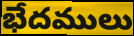
భేదములు